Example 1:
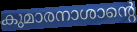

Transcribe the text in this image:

കുമാരനാശാന്റെ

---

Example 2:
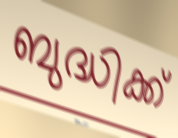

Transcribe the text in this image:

ബുദ്ധിക്ക്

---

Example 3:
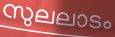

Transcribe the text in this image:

സുലലാടം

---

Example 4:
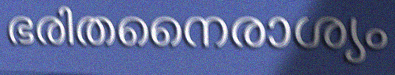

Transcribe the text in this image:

ഭരിതനൈരാശ്യം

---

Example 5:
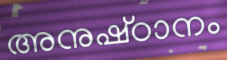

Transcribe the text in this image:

അനുഷ്‌ഠാനം